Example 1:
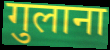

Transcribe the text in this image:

गुलाना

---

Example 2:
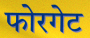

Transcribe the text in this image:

फोरगेट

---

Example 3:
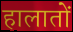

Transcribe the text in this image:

हालातों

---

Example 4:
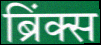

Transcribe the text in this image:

ब्रिंक्स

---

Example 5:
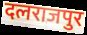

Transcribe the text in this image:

दलराजपुर